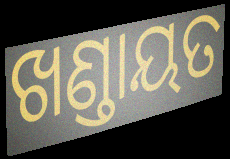
ଖଣ୍ଡାୟତ